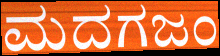
ಮದಗಜಂ